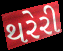
થરેરી